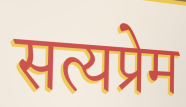
सत्यप्रेम